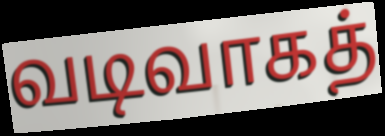
வடிவாகத்